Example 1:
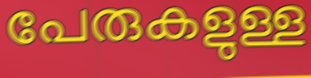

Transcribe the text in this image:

പേരുകളുള്ള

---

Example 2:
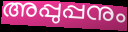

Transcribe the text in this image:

അപ്പുപ്പനും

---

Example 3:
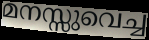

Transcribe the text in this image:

മനസ്സുവെച്ച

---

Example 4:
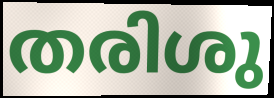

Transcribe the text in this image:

തരിശു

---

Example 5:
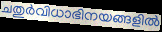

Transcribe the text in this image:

ചതുർവിധാഭിനയങ്ങളിൽ